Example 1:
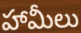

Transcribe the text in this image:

హామీలు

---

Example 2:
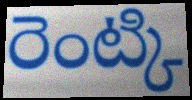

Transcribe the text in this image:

రెంట్కి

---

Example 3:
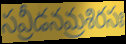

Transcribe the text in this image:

సవ్రీడనమ్రశిరసః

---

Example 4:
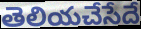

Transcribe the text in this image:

తెలియచేసేదే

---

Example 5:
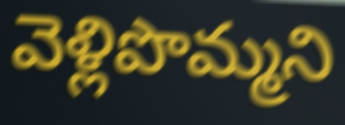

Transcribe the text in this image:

వెళ్లిపొమ్మని